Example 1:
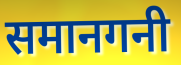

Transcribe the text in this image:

समानगनी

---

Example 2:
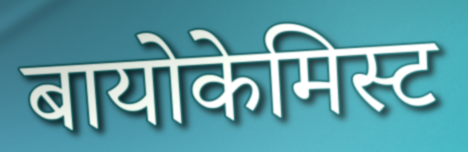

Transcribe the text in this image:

बायोकेमिस्ट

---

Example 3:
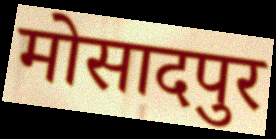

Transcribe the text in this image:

मोसादपुर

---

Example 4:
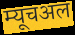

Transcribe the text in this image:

म्यूचअल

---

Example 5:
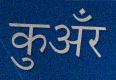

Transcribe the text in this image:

कुअँर